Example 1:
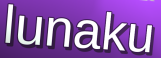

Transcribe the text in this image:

lunaku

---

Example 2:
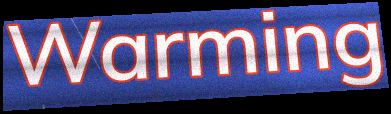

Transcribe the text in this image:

Warming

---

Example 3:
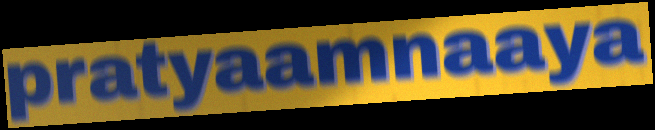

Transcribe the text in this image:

pratyaamnaaya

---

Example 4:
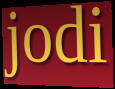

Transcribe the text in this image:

jodi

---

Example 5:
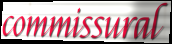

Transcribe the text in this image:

commissural